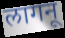
लागनू